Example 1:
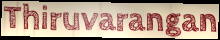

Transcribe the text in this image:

Thiruvarangan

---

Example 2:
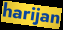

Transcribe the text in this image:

harijan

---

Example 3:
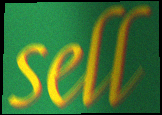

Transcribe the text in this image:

sell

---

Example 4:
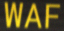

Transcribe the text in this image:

WAF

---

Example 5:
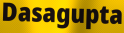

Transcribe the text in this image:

Dasagupta